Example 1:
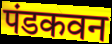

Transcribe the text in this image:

पंडकवन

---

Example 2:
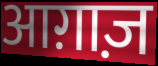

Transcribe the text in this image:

आग़ाज़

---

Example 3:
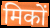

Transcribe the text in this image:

मिकों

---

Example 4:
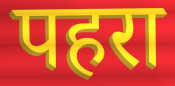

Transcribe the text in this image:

पहरा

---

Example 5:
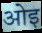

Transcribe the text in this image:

ओइ